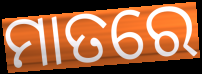
ମାତରେ